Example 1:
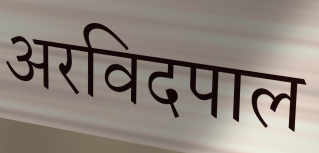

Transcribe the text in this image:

अरविदपाल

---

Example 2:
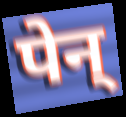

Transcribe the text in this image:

पेन्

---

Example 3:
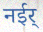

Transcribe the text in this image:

नईर्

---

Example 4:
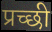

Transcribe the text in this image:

प्रच्छी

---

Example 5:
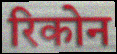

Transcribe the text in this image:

रिकोन